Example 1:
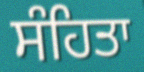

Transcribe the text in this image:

ਸੰਹਿਤਾ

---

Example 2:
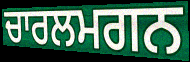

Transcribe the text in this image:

ਚਾਰਲਮਗਨ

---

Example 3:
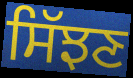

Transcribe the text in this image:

ਸਿੱਝਣ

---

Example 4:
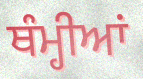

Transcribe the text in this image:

ਥੰਮ੍ਹੀਆਂ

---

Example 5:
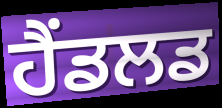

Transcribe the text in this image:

ਹੈਂਡਲਡ